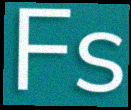
Fs